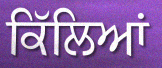
ਕਿੱਲਿਆਂ